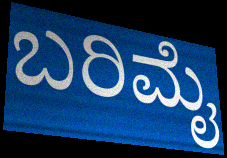
ಬರಿಮೈ